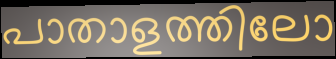
പാതാളത്തിലോ